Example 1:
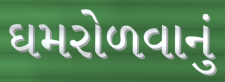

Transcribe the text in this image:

ઘમરોળવાનું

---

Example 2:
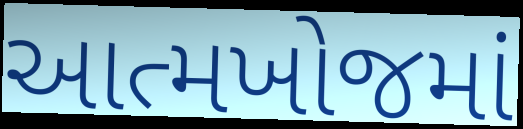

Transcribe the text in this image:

આત્મખોજમાં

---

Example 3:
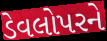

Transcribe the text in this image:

ડેવલોપરને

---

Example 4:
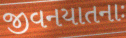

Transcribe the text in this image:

જીવનયાતનાઃ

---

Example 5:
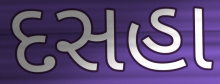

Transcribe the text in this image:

દસહા